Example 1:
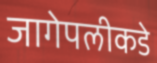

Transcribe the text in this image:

जागेपलीकडे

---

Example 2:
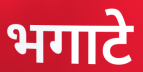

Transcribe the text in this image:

भगाटे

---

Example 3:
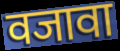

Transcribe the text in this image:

वजावा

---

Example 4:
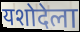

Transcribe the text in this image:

यशोदेला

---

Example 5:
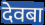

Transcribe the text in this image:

देवबा